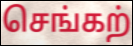
செங்கற்